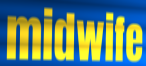
midwife